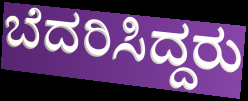
ಬೆದರಿಸಿದ್ದರು